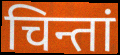
चिन्तां